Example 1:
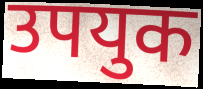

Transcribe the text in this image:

उपयुक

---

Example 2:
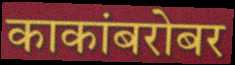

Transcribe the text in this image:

काकांबरोबर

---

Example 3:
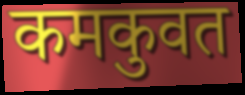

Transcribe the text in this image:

कमकुवत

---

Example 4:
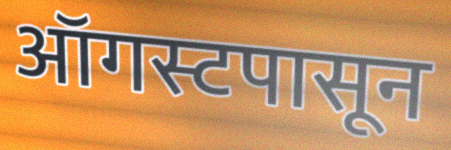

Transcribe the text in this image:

ऑगस्टपासून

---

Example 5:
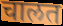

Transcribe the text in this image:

चालत